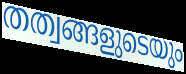
തത്വങ്ങളുടെയും